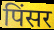
पिंसर